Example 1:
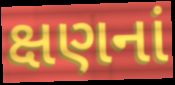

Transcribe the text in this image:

ક્ષણનાં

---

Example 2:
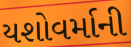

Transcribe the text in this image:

યશોવર્માની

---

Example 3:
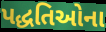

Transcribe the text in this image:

પદ્ધતિઓના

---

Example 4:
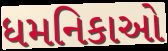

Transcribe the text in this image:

ધમનિકાઓ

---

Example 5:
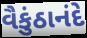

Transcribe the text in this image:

વૈકુંઠાનંદે